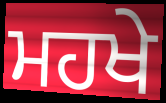
ਮਹਖੇ